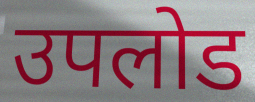
उपलोड